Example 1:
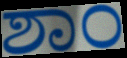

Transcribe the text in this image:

ಶಾಂ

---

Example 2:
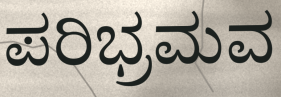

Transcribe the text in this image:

ಪರಿಭ್ರಮವ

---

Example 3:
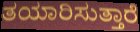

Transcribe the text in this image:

ತಯಾರಿಸುತ್ತಾರೆ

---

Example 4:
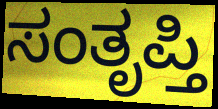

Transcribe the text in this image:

ಸಂತೃಪ್ತಿ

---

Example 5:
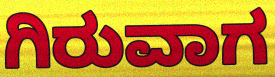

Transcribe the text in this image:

ಗಿರುವಾಗ